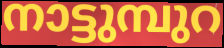
നാട്ടുമ്പുറ